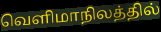
வெளிமாநிலத்தில்